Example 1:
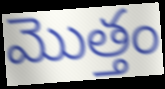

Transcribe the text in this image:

మొత్తం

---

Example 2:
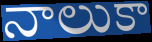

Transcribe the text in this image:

నాలుకా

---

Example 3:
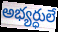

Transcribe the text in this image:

అభ్యర్ధులే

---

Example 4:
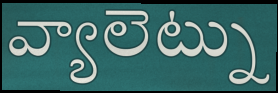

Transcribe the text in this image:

వ్యాలెట్ను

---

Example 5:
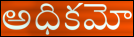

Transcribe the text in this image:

అధికమో